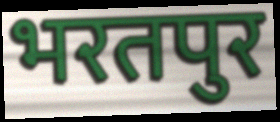
भरतपुर